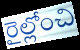
రైల్లోంచి